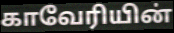
காவேரியின்